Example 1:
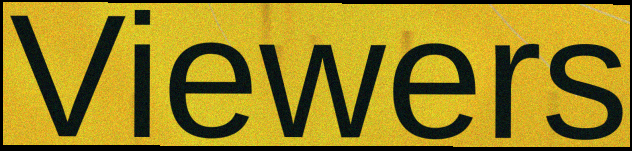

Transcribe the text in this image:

Viewers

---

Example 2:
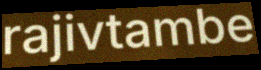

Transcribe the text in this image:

rajivtambe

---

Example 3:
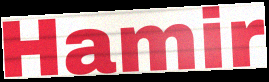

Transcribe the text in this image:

Hamir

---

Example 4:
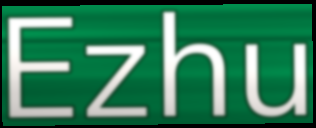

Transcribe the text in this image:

Ezhu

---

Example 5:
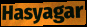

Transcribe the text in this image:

Hasyagar